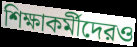
শিক্ষাকর্মীদেরও